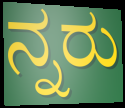
ನ್ನರು